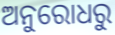
ଅନୁରୋଧରୁ